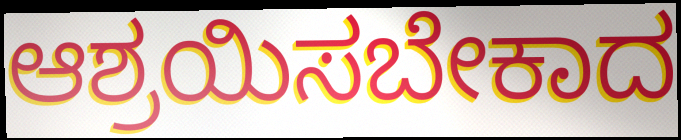
ಆಶ್ರಯಿಸಬೇಕಾದ